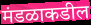
मंडळाकडील